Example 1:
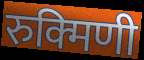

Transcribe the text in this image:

रुक्‍मिणी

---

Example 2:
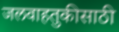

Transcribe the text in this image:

जलवाहतुकीसाठी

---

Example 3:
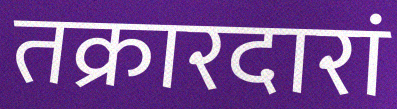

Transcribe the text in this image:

तक्रारदारां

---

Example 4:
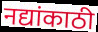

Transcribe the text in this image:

नद्यांकाठी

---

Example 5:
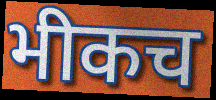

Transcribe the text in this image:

भीकच